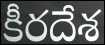
కీరదేశ